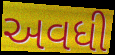
અવધી